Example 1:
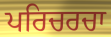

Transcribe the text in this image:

ਪਰਿਚਰਚਾ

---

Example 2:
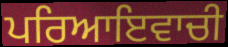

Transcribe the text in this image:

ਪਰਿਆਇਵਾਚੀ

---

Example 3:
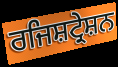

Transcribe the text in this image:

ਰਜਿਸ਼ਟ੍ਰੇਸ਼ਨ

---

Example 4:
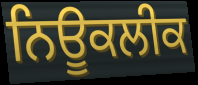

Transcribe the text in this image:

ਨਿਊਕਲੀਕ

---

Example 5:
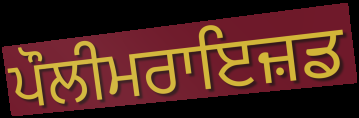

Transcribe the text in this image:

ਪੌਲੀਮਰਾਇਜ਼ਡ